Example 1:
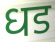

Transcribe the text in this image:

धड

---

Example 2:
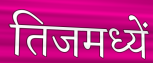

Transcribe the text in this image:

तिजमध्यें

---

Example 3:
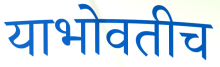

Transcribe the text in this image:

याभोवतीच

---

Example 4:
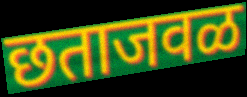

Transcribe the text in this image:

छताजवळ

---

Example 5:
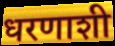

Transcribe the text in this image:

धरणाशी